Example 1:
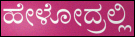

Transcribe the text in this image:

ಹೇಳೋದ್ರಲ್ಲಿ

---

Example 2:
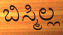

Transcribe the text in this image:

ಬಿಸ್ಮಿಲ್ಲ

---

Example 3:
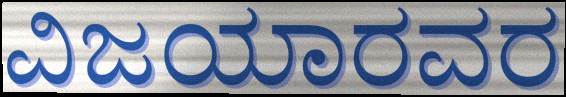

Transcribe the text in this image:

ವಿಜಯಾರವರ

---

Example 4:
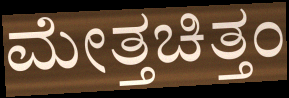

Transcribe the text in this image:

ಮೇತ್ತಚಿತ್ತಂ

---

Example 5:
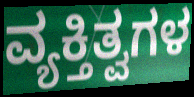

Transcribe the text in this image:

ವ್ಯಕ್ತಿತ್ವಗಳ